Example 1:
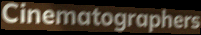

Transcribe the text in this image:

Cinematographers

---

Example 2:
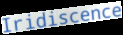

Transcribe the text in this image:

Iridiscence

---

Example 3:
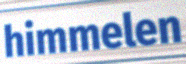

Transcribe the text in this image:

himmelen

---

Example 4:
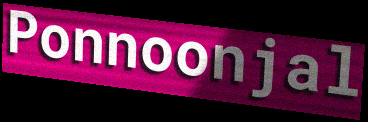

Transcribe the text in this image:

Ponnoonjal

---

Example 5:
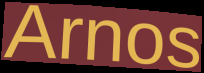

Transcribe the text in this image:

Arnos